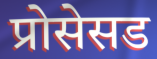
प्रोसेसड